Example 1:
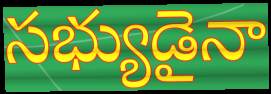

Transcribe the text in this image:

సభ్యుడైనా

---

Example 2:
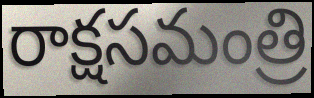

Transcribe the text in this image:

రాక్షసమంత్రి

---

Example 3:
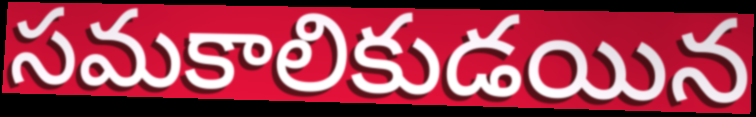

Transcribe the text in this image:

సమకాలికుడయిన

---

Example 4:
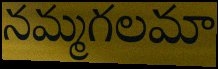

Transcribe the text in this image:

నమ్మగలమా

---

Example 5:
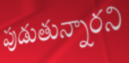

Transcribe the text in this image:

పుడుతున్నారని